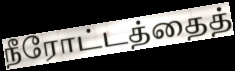
நீரோட்டத்தைத்